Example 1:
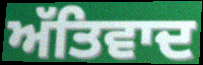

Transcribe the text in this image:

ਅੱਤਿਵਾਦ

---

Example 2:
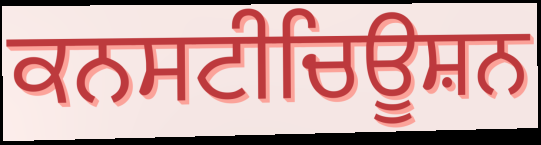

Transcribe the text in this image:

ਕਨਸਟੀਚਿਊਸ਼ਨ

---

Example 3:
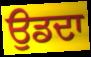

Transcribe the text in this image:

ਉਡਦਾ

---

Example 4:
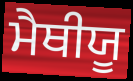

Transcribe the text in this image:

ਮੈਥੀਯੂ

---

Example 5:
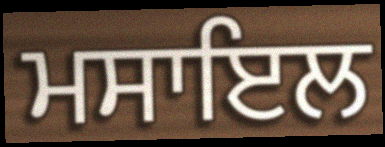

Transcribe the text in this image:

ਮਸਾਇਲ